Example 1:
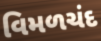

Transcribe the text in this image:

વિમળચંદ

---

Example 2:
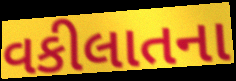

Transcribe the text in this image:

વકીલાતના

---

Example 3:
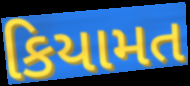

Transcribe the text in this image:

કિયામત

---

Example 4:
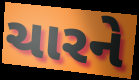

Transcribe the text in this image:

ચારને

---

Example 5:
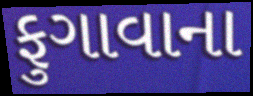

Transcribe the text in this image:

ફુગાવાના